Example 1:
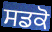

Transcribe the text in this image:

ਸਡਕੋ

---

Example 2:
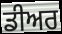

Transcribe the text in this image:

ਡੀਅਰ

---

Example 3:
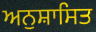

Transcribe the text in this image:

ਅਨੁਸ਼ਾਸਿਤ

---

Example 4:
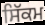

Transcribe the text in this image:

ਸਿੱਕਮ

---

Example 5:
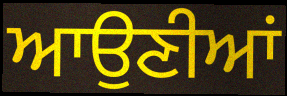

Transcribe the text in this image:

ਆਉਣੀਆਂ